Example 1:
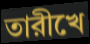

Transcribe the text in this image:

তারীখে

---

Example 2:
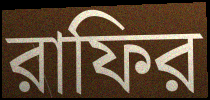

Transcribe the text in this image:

রাফির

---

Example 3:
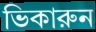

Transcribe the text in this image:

ভিকারুন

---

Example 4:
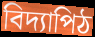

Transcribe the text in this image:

বিদ্যাপিঠ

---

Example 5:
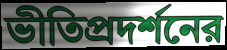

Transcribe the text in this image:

ভীতিপ্রদর্শনের